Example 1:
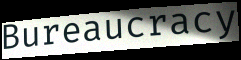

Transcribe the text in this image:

Bureaucracy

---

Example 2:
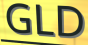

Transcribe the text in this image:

GLD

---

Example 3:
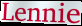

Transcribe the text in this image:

Lennie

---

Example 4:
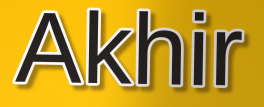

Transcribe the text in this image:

Akhir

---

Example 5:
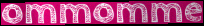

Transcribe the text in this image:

ommomme